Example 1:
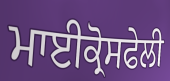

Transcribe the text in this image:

ਮਾਈਕ੍ਰੋਸਫੇਲੀ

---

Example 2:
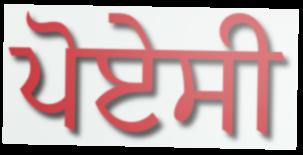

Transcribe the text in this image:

ਪੋਏਸੀ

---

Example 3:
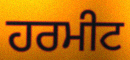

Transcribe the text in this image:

ਹਰਮੀਟ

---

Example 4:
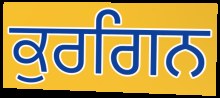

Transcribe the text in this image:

ਕੁਰਗਿਨ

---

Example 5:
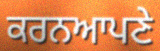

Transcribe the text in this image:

ਕਰਨਆਪਣੇ